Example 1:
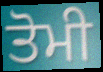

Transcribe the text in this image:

ਤੋਮੀ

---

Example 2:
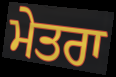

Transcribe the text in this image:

ਮੇਤਰਾ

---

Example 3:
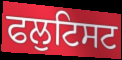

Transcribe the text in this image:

ਫਲੁਟਿਸਟ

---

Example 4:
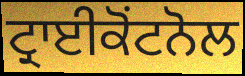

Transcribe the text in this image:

ਟ੍ਰਾਈਕੋਂਟਨੋਲ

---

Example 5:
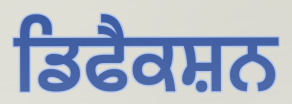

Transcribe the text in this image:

ਡਿਫੈਕਸ਼ਨ